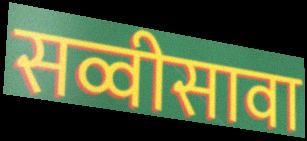
सव्वीसावा